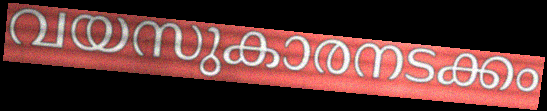
വയസുകാരനടക്കം